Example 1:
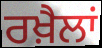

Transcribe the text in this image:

ਰਖ਼ੈਲਾਂ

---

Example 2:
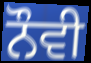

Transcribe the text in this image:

ਨੌਵੀ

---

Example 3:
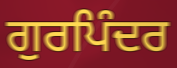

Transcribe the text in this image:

ਗੁਰਪਿੰਦਰ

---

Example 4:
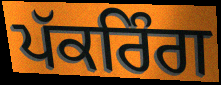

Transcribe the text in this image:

ਪੱਕਰਿੰਗ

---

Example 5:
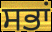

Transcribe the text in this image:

ਸਭਾਂ